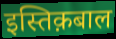
इस्तिक़बाल